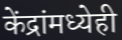
केंद्रांमध्येही